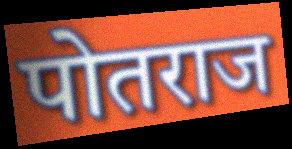
पोतराज